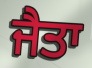
ਜੈਤਾ